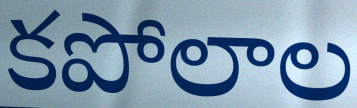
కపోలాల